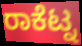
ರಾಕೆಟ್ನ